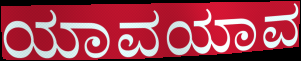
ಯಾವಯಾವ